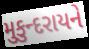
મુકુન્દરાયને